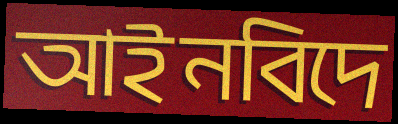
আইনবিদে